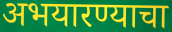
अभयारण्याचा